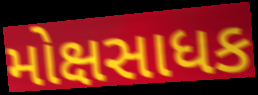
મોક્ષસાધક